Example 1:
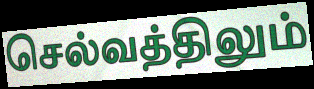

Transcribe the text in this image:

செல்வத்திலும்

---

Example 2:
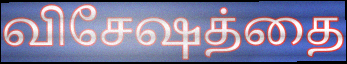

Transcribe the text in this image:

விசேஷத்தை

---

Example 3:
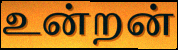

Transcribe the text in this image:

உன்றன்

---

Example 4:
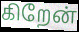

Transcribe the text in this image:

கிறேன்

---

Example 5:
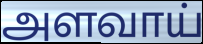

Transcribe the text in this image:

அளவாய்